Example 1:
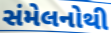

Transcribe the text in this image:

સંમેલનોથી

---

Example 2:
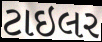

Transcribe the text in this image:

ટાઇલર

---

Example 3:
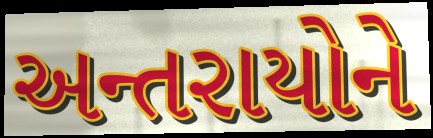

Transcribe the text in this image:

અન્તરાયોને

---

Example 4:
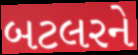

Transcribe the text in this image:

બટલરને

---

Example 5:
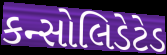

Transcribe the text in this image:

કન્સોલિડેટેડ